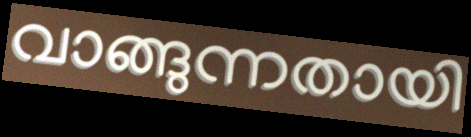
വാങ്ങുന്നതായി